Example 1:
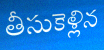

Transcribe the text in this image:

తీసుకెళ్లిన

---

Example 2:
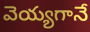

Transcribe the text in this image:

వెయ్యగానే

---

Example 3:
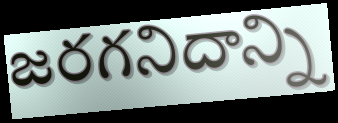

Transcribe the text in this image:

జరగనిదాన్ని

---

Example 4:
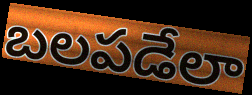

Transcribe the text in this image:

బలపడేలా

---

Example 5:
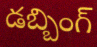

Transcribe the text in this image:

డబ్బింగ్